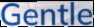
Gentle